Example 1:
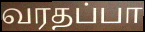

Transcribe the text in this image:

வரதப்பா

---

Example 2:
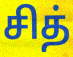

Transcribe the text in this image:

சித்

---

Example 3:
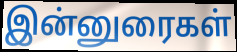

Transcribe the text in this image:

இன்னுரைகள்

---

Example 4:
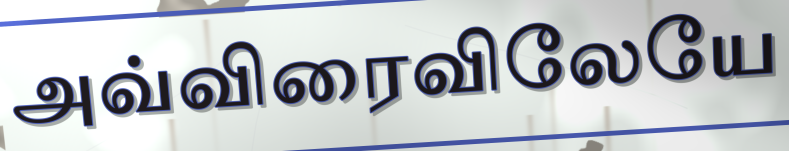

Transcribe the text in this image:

அவ்விரைவிலேயே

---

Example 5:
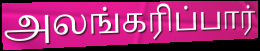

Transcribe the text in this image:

அலங்கரிப்பார்